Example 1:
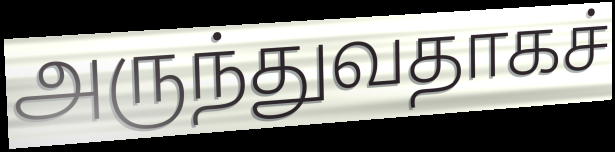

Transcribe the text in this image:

அருந்துவதாகச்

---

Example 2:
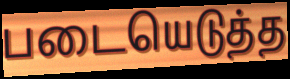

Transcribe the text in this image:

படையெடுத்த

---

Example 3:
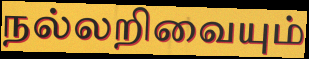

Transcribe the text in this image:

நல்லறிவையும்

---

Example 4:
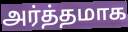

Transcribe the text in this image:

அர்த்தமாக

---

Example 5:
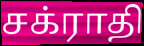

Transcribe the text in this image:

சக்ராதி